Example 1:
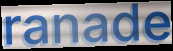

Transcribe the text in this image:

ranade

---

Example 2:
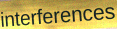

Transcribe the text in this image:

interferences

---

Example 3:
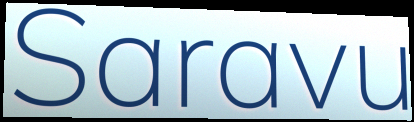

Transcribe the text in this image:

Saravu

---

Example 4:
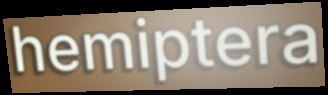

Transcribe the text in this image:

hemiptera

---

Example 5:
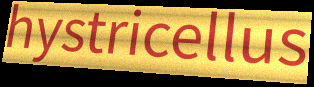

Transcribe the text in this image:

hystricellus